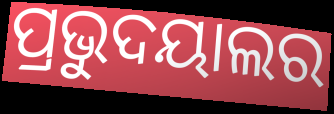
ପ୍ରଭୁଦୟାଲର